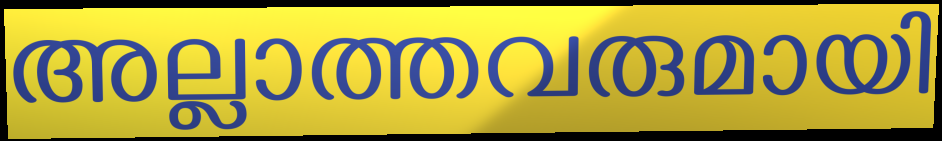
അല്ലാത്തവരുമായി